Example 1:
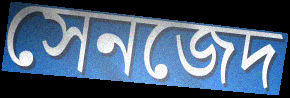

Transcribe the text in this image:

সেনজেদ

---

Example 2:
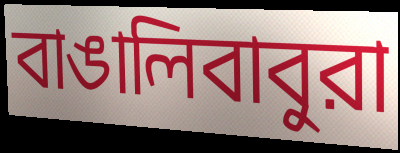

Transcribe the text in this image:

বাঙালিবাবুরা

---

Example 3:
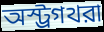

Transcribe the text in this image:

অস্ট্রগথরা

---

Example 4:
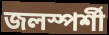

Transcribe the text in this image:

জলস্পর্শী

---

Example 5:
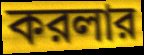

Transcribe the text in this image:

করলার